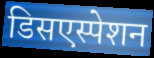
डिसएस्पेशन